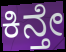
ಕಿನ್ತೇ